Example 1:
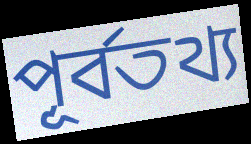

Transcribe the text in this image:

পূর্বতথ্য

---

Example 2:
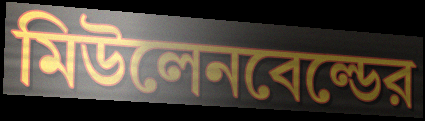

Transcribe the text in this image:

মিউলেনবেল্ডের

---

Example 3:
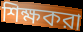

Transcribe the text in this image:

শিক্ষকরা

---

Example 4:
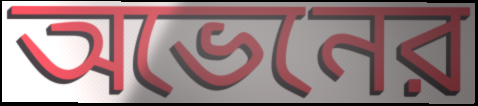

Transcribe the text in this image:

অভেনের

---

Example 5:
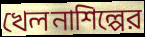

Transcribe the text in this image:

খেলনাশিল্পের